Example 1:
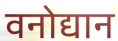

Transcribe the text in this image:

वनोद्यान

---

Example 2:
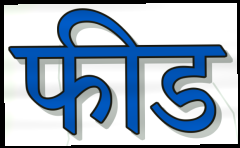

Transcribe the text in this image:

फीड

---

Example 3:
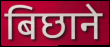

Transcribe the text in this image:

बिछाने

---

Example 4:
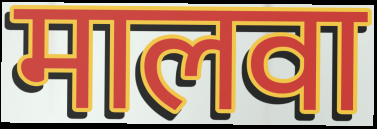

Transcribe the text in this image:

मालवा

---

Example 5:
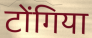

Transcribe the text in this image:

टोंगिया